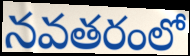
నవతరంలో